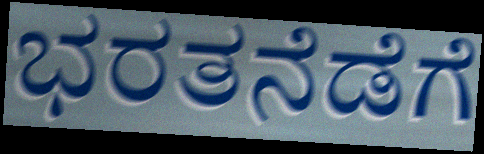
ಭರತನೆಡೆಗೆ